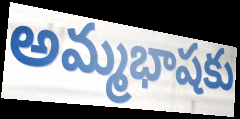
అమ్మభాషకు